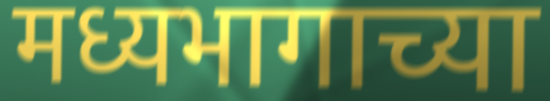
मध्यभागाच्या